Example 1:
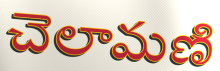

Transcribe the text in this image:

చెలామణి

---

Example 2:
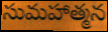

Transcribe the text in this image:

సుమహాత్మన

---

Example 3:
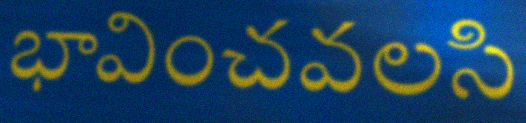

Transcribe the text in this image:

భావించవలసి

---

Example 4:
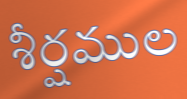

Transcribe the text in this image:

శీర్షముల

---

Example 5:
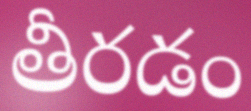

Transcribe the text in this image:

తీరడం